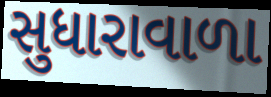
સુધારાવાળા